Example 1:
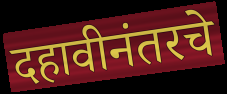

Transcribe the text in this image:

दहावीनंतरचे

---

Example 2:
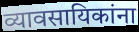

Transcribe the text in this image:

व्यावसायिकांना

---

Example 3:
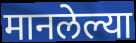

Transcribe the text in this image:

मानलेल्या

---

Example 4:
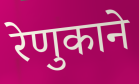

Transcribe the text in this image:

रेणुकाने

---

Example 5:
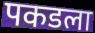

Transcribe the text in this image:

पकडला